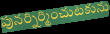
పునర్నిర్మించుటకును